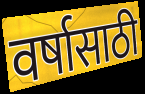
वर्षासाठी